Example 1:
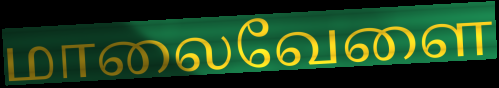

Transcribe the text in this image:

மாலைவேளை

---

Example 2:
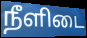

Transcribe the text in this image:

நீளிடை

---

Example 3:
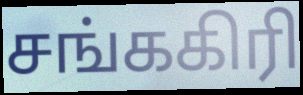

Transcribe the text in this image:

சங்ககிரி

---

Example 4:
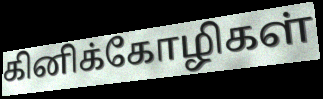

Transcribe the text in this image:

கினிக்கோழிகள்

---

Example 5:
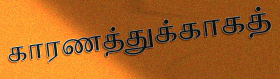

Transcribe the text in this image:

காரணத்துக்காகத்